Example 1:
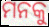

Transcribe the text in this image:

ମନକୁ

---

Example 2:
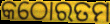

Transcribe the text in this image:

କଠୋରତମ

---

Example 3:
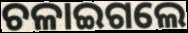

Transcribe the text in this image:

ଚଳାଇଗଲେ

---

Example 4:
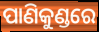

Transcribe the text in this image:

ପାଣିକୁଣ୍ଡରେ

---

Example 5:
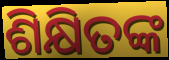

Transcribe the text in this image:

ଶିକ୍ଷିତଙ୍କ